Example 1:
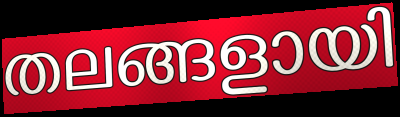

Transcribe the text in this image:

തലങ്ങളായി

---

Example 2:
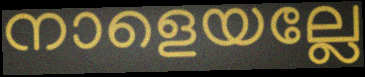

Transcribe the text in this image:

നാളെയല്ലേ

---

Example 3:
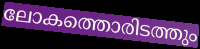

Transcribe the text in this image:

ലോകത്തൊരിടത്തും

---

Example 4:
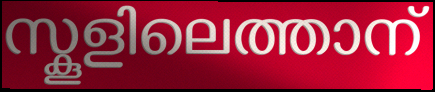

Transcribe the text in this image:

സ്കൂളിലെത്താന്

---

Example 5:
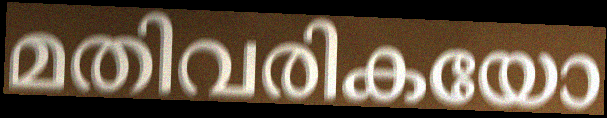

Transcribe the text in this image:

മതിവരികയോ